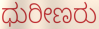
ಧುರೀಣರು